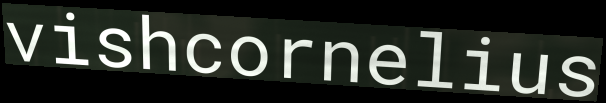
vishcornelius